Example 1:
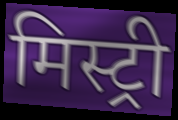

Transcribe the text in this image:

मिस्ट्री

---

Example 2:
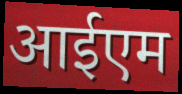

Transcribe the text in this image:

आईएम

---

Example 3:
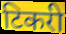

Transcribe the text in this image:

टिकरी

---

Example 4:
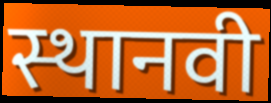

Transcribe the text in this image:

स्थानवी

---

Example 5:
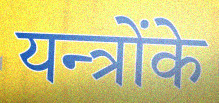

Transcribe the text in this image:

यन्त्रोंके